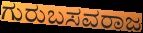
ಗುರುಬಸವರಾಜ